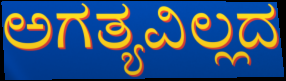
ಅಗತ್ಯವಿಲ್ಲದ